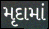
મૃદામાં